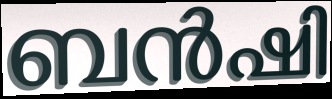
ബൻഷി